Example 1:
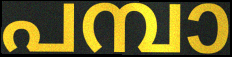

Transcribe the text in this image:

പമ്പാ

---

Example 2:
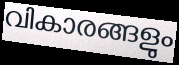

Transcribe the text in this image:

വികാരങ്ങളും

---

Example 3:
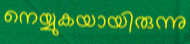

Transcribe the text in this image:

നെയ്യുകയായിരുന്നു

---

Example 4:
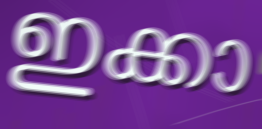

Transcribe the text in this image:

ഇക്കാ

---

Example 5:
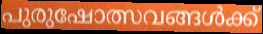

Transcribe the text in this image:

പുരുഷോത്സവങ്ങൾക്ക്